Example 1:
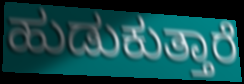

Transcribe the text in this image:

ಹುಡುಕುತ್ತಾರೆ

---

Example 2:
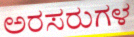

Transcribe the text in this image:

ಅರಸರುಗಳ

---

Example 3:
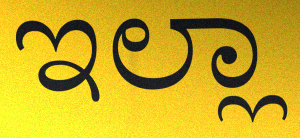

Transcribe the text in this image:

ಇಲ್ಲಾ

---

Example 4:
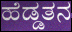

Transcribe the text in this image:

ಹೆಡ್ಡತನ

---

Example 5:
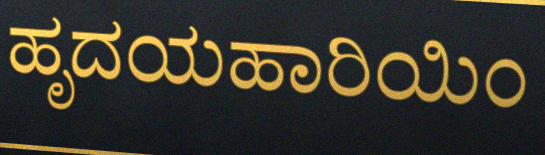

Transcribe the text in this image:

ಹೃದಯಹಾರಿಯಿಂ